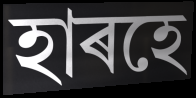
হাৰহে